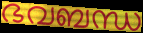
ഭവബന്ധ